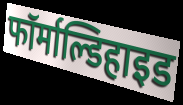
फॉर्माल्डिहाइड